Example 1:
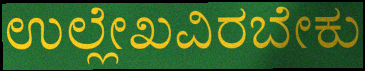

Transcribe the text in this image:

ಉಲ್ಲೇಖವಿರಬೇಕು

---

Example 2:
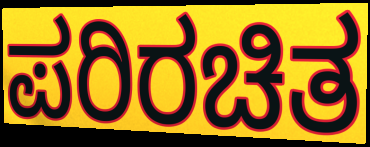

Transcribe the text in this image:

ಪರಿರಚಿತ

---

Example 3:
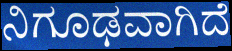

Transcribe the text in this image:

ನಿಗೂಢವಾಗಿದೆ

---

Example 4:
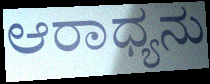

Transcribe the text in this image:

ಆರಾಧ್ಯನು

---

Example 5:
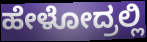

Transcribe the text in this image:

ಹೇಳೋದ್ರಲ್ಲಿ